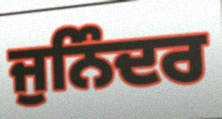
ਜੁਨਿੰਦਰ